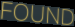
FOUND